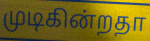
முடிகின்றதா